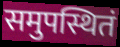
समुपस्थितं